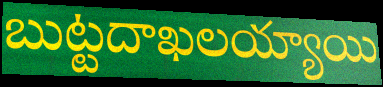
బుట్టదాఖలయ్యాయి